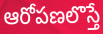
ఆరోపణలొస్తే